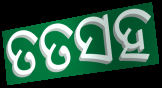
ତତସହ